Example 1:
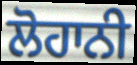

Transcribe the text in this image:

ਲੋਹਾਨੀ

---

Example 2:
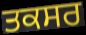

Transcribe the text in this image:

ਤਕਸਰ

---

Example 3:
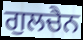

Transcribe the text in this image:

ਗੁਲਚੈਨ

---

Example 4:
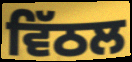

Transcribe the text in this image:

ਵਿੱਠਲ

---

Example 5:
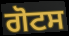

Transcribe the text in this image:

ਗੋਟਸ